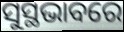
ସୁସ୍ଥଭାବରେ